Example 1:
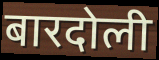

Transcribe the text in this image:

बारदोली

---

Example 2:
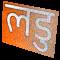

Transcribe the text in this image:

लडु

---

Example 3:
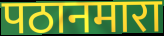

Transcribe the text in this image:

पठानमारा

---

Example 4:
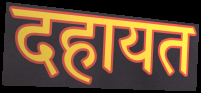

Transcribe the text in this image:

दहायत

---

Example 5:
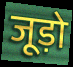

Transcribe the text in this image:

जूड़ो